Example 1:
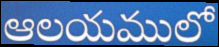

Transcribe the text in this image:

ఆలయములో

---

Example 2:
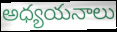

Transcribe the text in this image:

అధ్యయనాలు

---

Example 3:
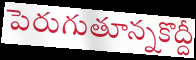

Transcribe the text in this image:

పెరుగుతూన్నకొద్దీ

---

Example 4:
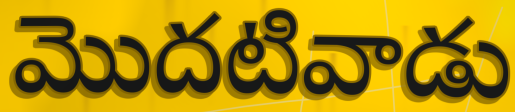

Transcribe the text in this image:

మొదటివాడు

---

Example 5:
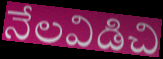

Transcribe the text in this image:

నేలవిడిచి